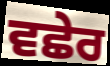
ਵਛੇਰ